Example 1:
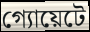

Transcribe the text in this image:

গ্যোয়েটে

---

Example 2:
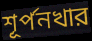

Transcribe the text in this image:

শূর্পনখার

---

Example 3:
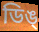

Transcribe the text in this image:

ডিঙ্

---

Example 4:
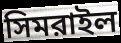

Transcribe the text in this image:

সিমরাইল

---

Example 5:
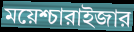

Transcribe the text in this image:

ময়েশ্চারাইজার